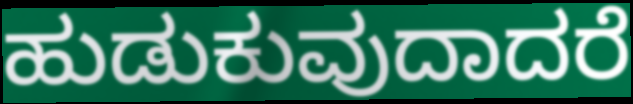
ಹುಡುಕುವುದಾದರೆ